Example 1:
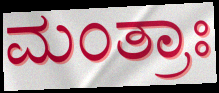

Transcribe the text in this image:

ಮಂತ್ರಾಃ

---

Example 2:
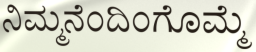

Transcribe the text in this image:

ನಿಮ್ಮನೆಂದಿಂಗೊಮ್ಮೆ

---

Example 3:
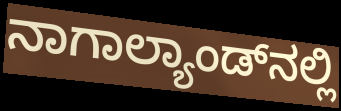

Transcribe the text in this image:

ನಾಗಾಲ್ಯಾಂಡ್‌ನಲ್ಲಿ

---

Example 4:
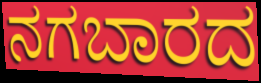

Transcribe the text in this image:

ನಗಬಾರದ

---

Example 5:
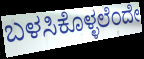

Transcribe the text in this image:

ಬಳಸಿಕೊಳ್ಳಲೆಂದೇ